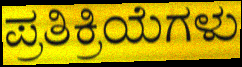
ಪ್ರತಿಕ್ರಿಯೆಗಳು